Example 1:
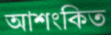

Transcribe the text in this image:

আশংকিত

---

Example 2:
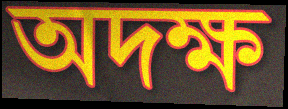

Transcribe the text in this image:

অদক্ষ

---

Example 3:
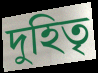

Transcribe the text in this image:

দুহিতৃ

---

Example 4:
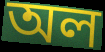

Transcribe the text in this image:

অল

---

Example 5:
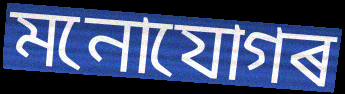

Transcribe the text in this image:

মনোযোগৰ